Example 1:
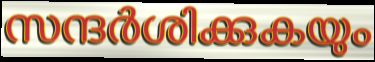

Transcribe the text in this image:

സന്ദർശിക്കുകയും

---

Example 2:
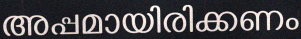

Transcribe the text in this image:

അപ്പമായിരിക്കണം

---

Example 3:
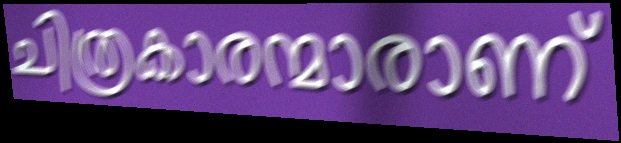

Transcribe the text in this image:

ചിത്രകാരന്മാരാണ്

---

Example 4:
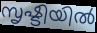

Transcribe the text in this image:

സൃഷ്ടിയിൽ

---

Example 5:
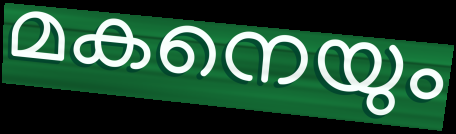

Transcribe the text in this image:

മകനെയും